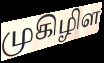
முகிழிள